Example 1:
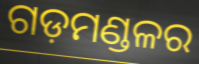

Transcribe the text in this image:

ଗଡ଼ମଣ୍ଡଳର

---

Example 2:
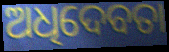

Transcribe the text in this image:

ଅଧିଦେବତା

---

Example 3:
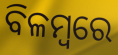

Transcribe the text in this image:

ବିଳମ୍ୱରେ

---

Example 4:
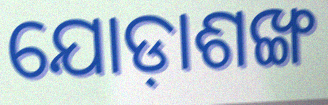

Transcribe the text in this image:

ଯୋଡ଼ାଶଙ୍ଖ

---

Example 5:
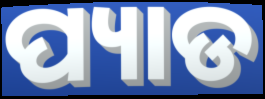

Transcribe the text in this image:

ପ୍ୟାଡ